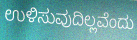
ಉಳಿಸುವುದಿಲ್ಲವೆಂದು